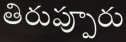
తిరుప్పూరు